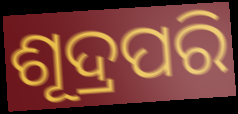
ଶୂଦ୍ରପରି